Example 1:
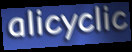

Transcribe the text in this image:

alicyclic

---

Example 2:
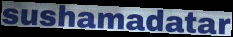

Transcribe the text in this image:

sushamadatar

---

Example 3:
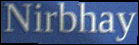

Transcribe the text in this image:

Nirbhay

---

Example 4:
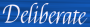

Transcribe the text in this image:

Deliberate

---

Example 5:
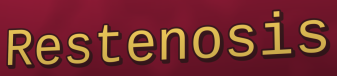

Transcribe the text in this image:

Restenosis